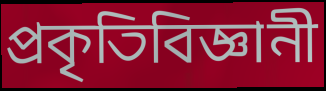
প্রকৃতিবিজ্ঞানী